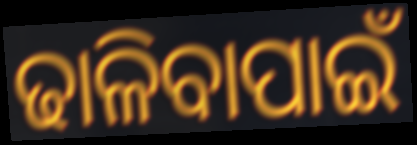
ଢାଳିବାପାଇଁ